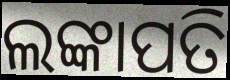
ଲଙ୍କାପତି